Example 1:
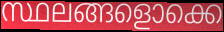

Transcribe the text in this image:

സ്ഥലങ്ങളൊക്കെ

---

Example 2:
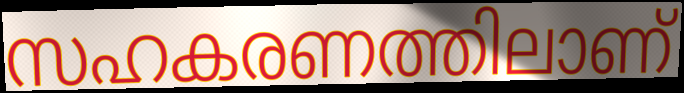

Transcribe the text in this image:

സഹകരണത്തിലാണ്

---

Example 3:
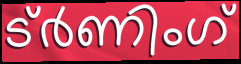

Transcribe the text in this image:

ട്ർണിംഗ്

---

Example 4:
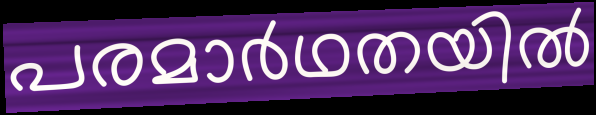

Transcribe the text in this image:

പരമാർഥതയിൽ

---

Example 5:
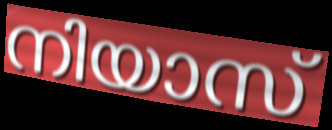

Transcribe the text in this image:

നിയാസ്